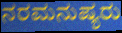
ನರಮನುಷ್ಯರು